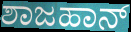
ಶಾಜಹಾನ್